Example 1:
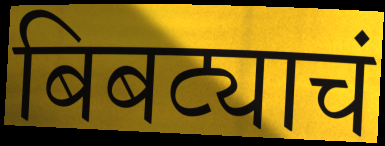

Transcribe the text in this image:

बिबट्याचं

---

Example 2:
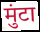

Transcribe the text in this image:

मुंटा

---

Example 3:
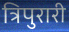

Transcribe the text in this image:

त्रिपुरारी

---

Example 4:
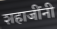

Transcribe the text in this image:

शहाजींनी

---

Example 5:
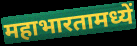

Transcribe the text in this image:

महाभारतामध्यें